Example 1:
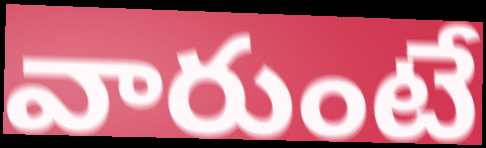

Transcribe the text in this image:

వారుంటే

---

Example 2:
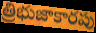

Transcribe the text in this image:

త్రిభుజాకారపు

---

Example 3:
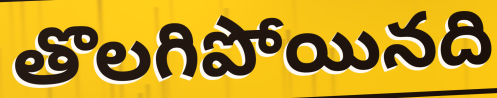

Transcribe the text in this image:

తొలగిపోయినది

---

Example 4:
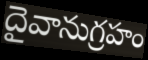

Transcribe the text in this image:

దైవానుగ్రహం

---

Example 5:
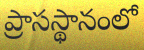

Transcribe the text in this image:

ప్రాసస్థానంలో